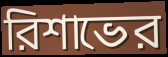
রিশাভের